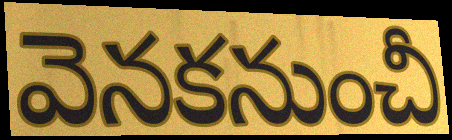
వెనకనుంచీ